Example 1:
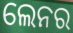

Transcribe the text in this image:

ଲେନର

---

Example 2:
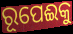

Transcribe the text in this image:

ରୂପେଈକୁ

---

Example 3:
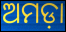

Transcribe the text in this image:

ଅମଡ଼ା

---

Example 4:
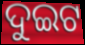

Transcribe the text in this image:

ଦୁଇଟ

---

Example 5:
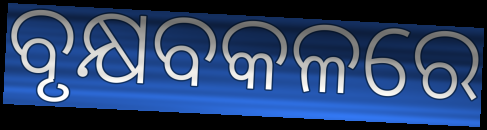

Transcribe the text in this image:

ବୃକ୍ଷବକଳରେ